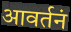
आवर्तनं